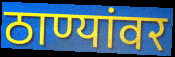
ठाण्यांवर